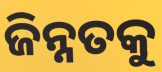
ଜିନ୍ନତକୁ